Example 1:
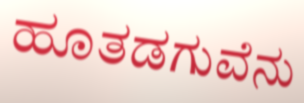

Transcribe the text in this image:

ಹೂತಡಗುವೆನು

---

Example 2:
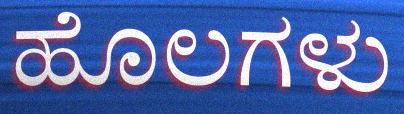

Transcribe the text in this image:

ಹೊಲಗಳು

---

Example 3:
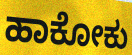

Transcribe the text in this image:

ಹಾಕೋಕು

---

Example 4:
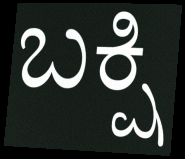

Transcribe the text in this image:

ಬಕ್ಷಿ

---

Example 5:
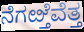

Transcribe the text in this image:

ನೆಗೞ್ತೆವೆತ್ತ